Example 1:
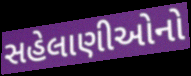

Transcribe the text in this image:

સહેલાણીઓનો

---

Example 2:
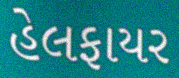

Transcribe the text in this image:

હેલફાયર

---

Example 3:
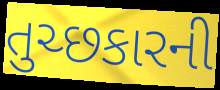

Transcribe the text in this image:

તુચ્છકારની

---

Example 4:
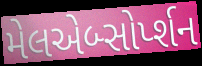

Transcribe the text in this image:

મેલએબ્સોર્પ્શન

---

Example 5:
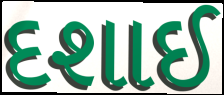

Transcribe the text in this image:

દશાઈ